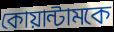
কোয়ান্টামকে